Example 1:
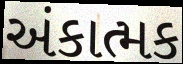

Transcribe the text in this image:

અંકાત્મક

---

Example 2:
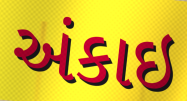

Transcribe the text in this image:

અંકાઇ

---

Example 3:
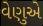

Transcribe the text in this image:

વેણુએ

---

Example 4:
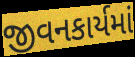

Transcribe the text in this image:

જીવનકાર્યમાં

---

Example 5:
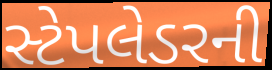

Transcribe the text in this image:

સ્ટેપલેડરની